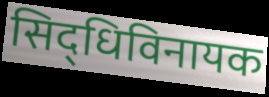
सिद्धिविनायक